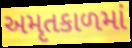
અમૃતકાળમાં